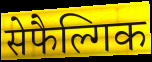
सेफैल्गिक